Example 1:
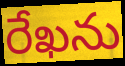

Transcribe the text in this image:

రేఖను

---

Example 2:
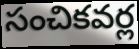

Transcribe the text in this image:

సంచికవర్ల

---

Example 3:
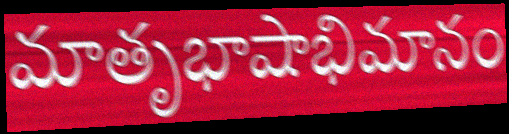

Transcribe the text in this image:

మాతృభాషాభిమానం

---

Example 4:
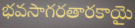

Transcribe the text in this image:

భవసాగరతారకాయై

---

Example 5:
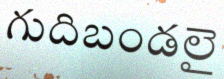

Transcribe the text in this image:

గుదిబండలై